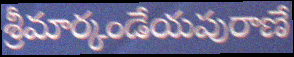
శ్రీమార్కండేయపురాణే